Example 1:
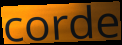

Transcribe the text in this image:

corde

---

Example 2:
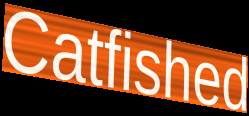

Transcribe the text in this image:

Catfished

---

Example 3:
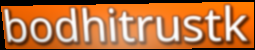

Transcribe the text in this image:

bodhitrustk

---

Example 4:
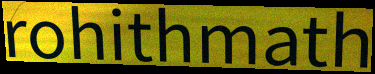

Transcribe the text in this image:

rohithmath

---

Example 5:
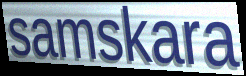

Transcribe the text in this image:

samskara